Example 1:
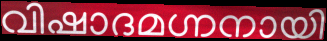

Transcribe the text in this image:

വിഷാദമഗ്നനായി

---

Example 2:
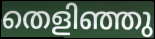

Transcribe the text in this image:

തെളിഞ്ഞു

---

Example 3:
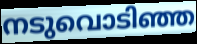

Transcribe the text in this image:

നടുവൊടിഞ്ഞ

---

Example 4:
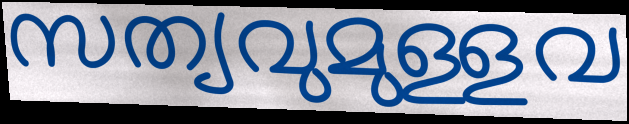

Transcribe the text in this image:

സത്യവുമുള്ളവ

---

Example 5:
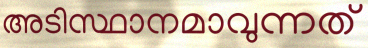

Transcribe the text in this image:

അടിസ്ഥാനമാവുന്നത്